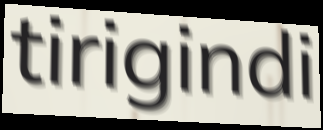
tirigindi